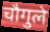
चौगुले